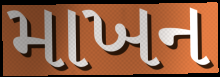
માખન